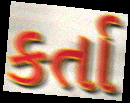
કર્તા